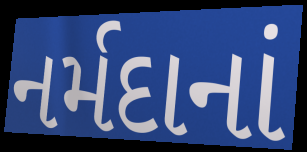
નર્મદાનાં